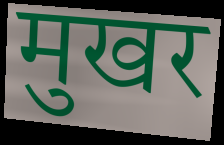
मुखर